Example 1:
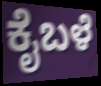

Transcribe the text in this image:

ಕೈಬಳೆ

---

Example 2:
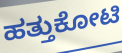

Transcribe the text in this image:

ಹತ್ತುಕೋಟಿ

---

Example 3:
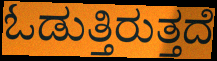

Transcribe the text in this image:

ಓಡುತ್ತಿರುತ್ತದೆ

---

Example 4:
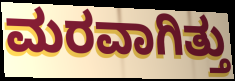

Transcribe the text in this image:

ಮರವಾಗಿತ್ತು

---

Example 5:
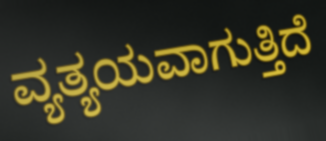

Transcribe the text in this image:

ವ್ಯತ್ಯಯವಾಗುತ್ತಿದೆ